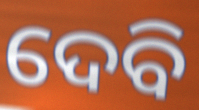
ଦେବି